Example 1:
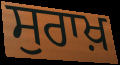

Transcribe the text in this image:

ਸੁਰਾਖ਼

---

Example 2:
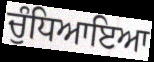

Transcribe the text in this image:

ਚੁੰਧਿਆਇਆ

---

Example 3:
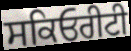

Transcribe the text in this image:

ਸਕਿਓਰੀਟੀ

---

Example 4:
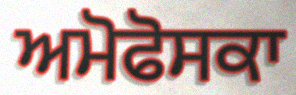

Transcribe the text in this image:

ਅਮੋਫੋਸਕਾ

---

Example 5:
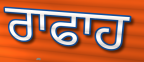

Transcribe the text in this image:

ਰਾਫਾਹ